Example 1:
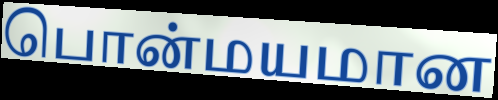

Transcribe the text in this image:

பொன்மயமான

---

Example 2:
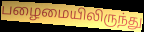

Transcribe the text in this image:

பழைமையிலிருந்து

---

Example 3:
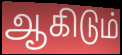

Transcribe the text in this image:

ஆகிடும்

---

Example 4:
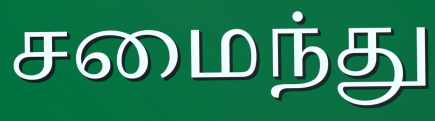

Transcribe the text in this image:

சமைந்து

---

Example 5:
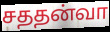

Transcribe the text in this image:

சததன்வா